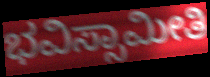
ಭವಿಸ್ಸಾಮೀತಿ